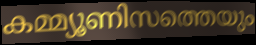
കമ്മ്യൂണിസത്തെയും